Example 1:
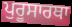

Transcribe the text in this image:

ਪੁਰੂਸਾਰਥਾ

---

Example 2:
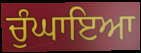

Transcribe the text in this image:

ਚੁੰਘਾਇਆ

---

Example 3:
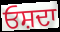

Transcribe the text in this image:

ਓਸ਼ਦਾ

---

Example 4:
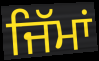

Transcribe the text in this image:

ਜਿੱਮਾਂ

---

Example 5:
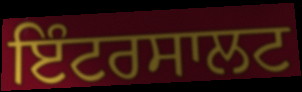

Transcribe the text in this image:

ਇੰਟਰਸਾਲਟ